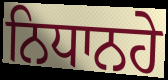
ਨਿਧਾਨਹੇ